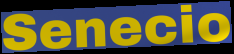
Senecio